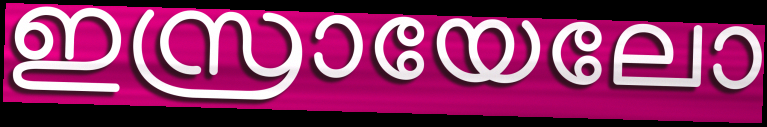
ഇസ്രായേലോ